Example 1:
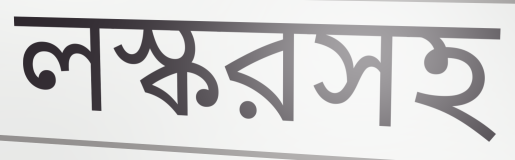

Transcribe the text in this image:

লস্করসহ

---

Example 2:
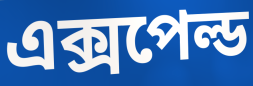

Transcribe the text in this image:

এক্সপেল্ড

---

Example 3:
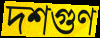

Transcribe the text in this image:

দশগুণ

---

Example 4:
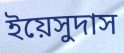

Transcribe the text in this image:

ইয়েসুদাস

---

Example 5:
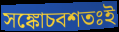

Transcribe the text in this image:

সঙ্কোচবশতঃই